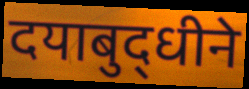
दयाबुद्धीने